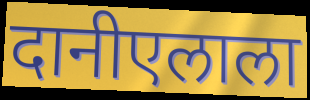
दानीएलाला